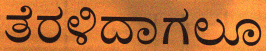
ತೆರಳಿದಾಗಲೂ